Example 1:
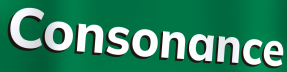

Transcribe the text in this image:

Consonance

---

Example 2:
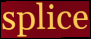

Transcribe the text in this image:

splice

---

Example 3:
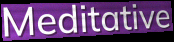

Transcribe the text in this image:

Meditative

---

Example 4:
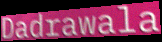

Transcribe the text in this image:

Dadrawala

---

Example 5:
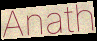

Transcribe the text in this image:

Anath